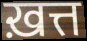
ख़त्त